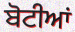
ਬੋਟੀਆਂ